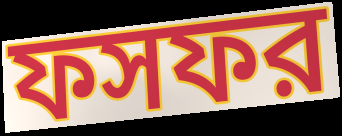
ফসফর